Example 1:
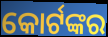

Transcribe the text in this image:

କୋର୍ଟଙ୍କର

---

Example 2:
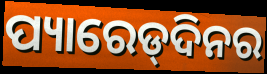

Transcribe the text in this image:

ପ୍ୟାରେଡ୍‌ଦିନର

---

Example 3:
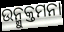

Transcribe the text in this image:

ଉନ୍ମୁକ୍ତମନା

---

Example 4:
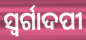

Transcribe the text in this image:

ସ୍ବର୍ଗାଦପୀ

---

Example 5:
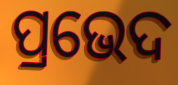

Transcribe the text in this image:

ପ୍ରଭେଦ